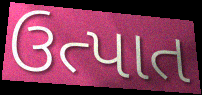
ઉત્પાત